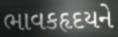
ભાવકહૃદયને